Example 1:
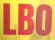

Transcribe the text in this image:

LBO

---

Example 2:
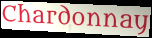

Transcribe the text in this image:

Chardonnay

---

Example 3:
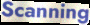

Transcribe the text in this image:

Scanning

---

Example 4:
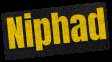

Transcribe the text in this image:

Niphad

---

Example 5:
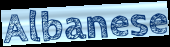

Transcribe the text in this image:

Albanese